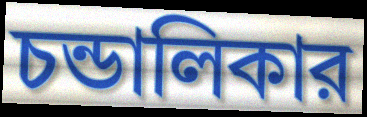
চন্ডালিকার